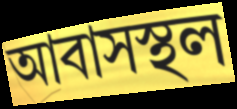
আবাসস্থল